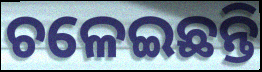
ଚଳେଇଛନ୍ତି